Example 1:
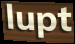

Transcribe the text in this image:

lupt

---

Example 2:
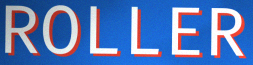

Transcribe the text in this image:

ROLLER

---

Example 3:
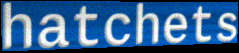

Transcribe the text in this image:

hatchets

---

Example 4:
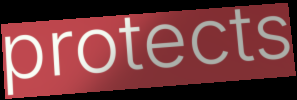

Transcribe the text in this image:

protects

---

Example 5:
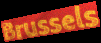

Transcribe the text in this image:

Brussels